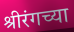
श्रीरंगच्या